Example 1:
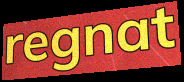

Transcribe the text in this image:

regnat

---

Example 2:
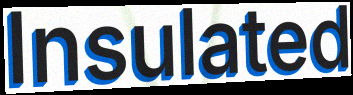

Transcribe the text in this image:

Insulated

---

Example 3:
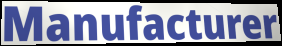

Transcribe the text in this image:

Manufacturer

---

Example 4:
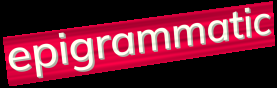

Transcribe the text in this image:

epigrammatic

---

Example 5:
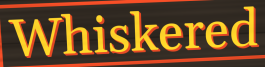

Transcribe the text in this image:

Whiskered